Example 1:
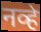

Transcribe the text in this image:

नव्हे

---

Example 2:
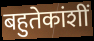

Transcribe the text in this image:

बहुतेकांशीं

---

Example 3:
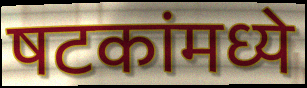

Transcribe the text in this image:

षटकांमध्ये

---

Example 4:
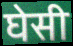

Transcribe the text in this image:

घेसी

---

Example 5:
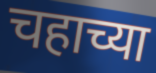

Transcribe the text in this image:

चहाच्या